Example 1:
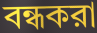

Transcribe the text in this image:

বন্ধকরা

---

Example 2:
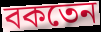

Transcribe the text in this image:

বকতেন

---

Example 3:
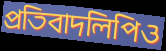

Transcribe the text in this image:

প্রতিবাদলিপিও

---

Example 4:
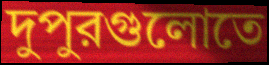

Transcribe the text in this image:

দুপুরগুলোতে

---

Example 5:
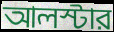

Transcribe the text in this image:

আলস্টার